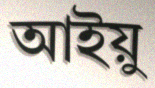
আইয়ু